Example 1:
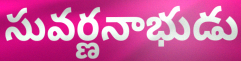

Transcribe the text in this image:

సువర్ణనాభుడు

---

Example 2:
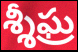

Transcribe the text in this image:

శ్శీఘ్ర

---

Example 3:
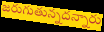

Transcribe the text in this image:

జరుగుతున్నదన్నారు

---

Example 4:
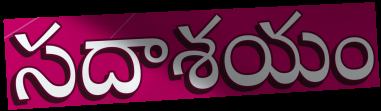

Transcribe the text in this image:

సదాశయం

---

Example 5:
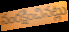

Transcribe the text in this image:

సంరక్షించినట్లు